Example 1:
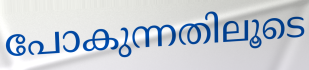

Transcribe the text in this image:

പോകുന്നതിലൂടെ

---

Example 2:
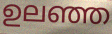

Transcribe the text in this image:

ഉലഞ്ഞ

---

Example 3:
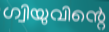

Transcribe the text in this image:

ഗ്വിയുവിന്റെ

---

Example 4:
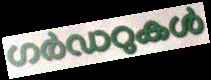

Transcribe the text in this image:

ഗർഡറുകൾ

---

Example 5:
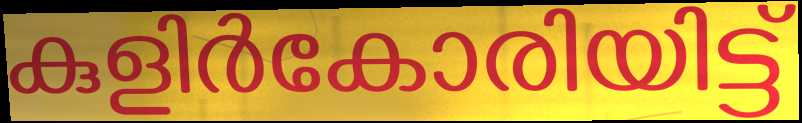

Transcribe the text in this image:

കുളിർകോരിയിട്ട്